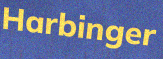
Harbinger